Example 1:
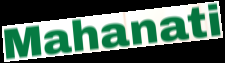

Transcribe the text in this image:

Mahanati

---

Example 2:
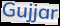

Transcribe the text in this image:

Gujjar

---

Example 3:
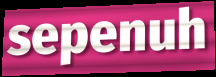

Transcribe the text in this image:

sepenuh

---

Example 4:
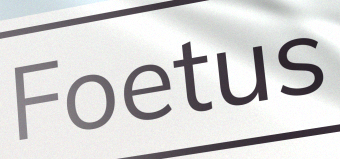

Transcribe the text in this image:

Foetus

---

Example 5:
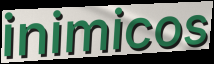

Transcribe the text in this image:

inimicos